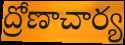
ద్రోణాచార్య